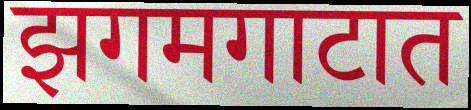
झगमगाटात